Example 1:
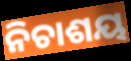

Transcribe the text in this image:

ନିଚାଶୟ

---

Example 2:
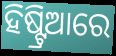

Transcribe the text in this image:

ହିଷ୍ଟ୍ରିଆରେ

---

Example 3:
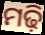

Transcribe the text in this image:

ମଢ଼ି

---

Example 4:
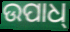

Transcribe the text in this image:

ଉପାଧ୍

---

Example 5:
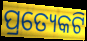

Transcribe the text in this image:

ପ୍ରତ୍ୟେକଟି